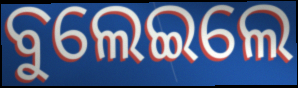
ବୁଲେଇଲେ